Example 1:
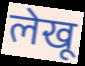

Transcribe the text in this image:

लेखू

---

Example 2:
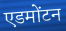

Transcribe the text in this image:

एडमोंटन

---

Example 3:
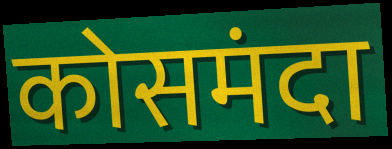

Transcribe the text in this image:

कोसमंदा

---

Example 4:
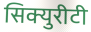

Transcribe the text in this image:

सिक्युरीटी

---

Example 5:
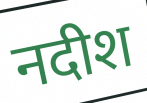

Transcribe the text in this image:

नदीश